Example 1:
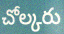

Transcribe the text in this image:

చోల్కరు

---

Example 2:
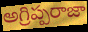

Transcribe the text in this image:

అగ్రిప్పరాజా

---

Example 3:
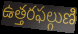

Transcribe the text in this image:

ఉత్తరఫల్గుణి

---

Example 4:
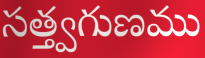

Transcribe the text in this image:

సత్త్వగుణము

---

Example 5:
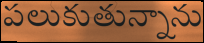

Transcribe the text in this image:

పలుకుతున్నాను